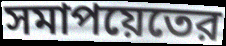
সমাপয়েতের